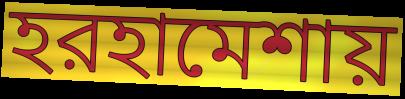
হরহামেশায়